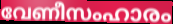
വേണീസംഹാരം